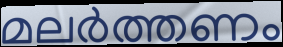
മലർത്തണം